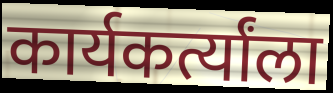
कार्यकर्त्यांला